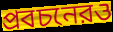
প্রবচনেরও